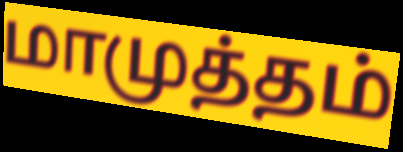
மாமுத்தம்